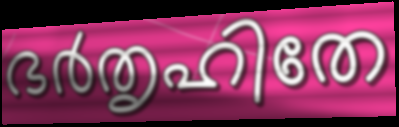
ഭർതൃഹിതേ